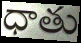
ధాతు